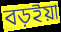
বড়ইয়া